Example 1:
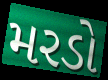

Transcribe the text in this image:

મરડો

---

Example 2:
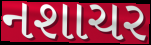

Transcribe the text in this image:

નશાચર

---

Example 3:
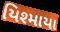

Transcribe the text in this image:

યિશ્માયા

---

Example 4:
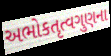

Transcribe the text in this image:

અભોકતૃત્વગુણના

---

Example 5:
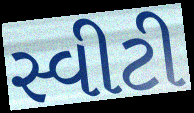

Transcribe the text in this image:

સ્વીટી